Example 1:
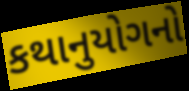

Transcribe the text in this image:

કથાનુયોગનો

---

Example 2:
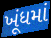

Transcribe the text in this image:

ખૂંધમાં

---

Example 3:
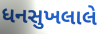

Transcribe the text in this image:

ધનસુખલાલે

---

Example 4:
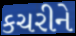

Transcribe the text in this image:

કચરીને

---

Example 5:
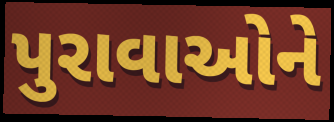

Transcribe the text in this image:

પુરાવાઓને